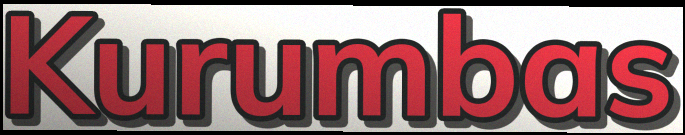
Kurumbas